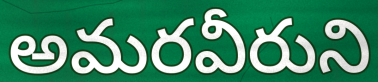
అమరవీరుని